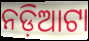
ନଡ଼ିଆଟା